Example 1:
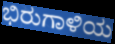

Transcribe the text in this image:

ಭಿರುಗಾಳಿಯ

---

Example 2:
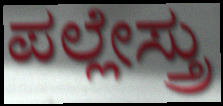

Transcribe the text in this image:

ಪಲ್ಲೇಸ್ತ್ರು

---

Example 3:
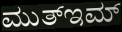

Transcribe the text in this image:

ಮುತ್ಇಮ್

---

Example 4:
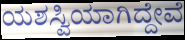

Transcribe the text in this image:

ಯಶಸ್ವಿಯಾಗಿದ್ದೇವೆ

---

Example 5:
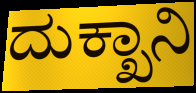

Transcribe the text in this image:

ದುಕ್ಖಾನಿ